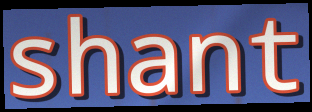
shant